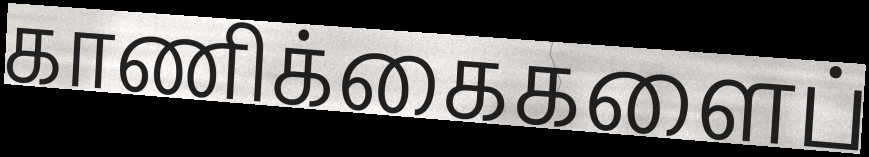
காணிக்கைகளைப்